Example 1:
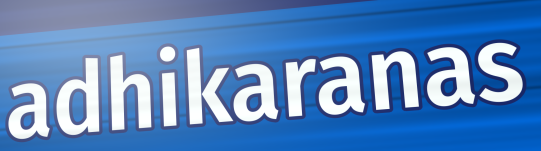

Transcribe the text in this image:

adhikaranas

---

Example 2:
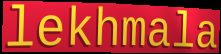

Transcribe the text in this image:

lekhmala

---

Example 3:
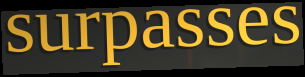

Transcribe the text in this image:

surpasses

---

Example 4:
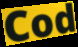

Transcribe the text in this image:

Cod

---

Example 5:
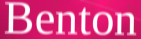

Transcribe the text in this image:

Benton